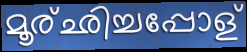
മൂര്ഛിച്ചപ്പോള്